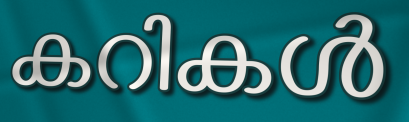
കറികൾ